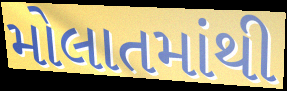
મોલાતમાંથી